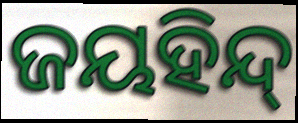
ଜୟହିନ୍ଦ୍